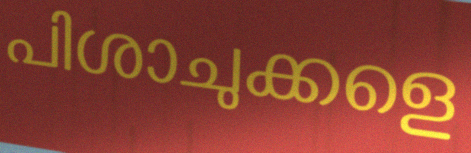
പിശാചുക്കളെ